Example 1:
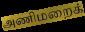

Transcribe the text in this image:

அணிமறைக்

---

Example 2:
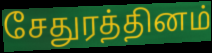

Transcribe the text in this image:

சேதுரத்தினம்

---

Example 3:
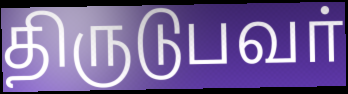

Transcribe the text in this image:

திருடுபவர்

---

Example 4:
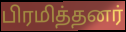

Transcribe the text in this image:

பிரமித்தனர்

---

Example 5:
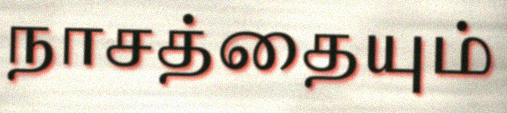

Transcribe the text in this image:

நாசத்தையும்